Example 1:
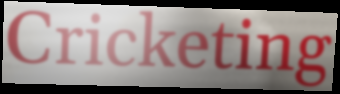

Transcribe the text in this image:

Cricketing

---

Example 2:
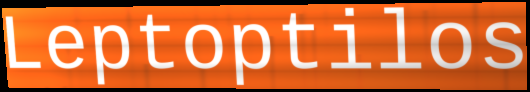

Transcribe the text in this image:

Leptoptilos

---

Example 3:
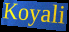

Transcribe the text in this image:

Koyali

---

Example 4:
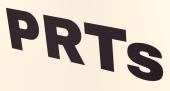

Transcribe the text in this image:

PRTs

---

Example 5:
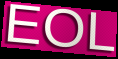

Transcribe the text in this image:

EOL